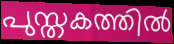
പുസ്തകത്തിൽ